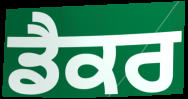
ਡੈਕਰ